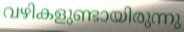
വഴികളുണ്ടായിരുന്നു